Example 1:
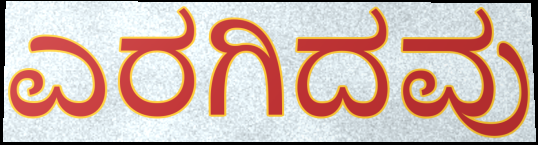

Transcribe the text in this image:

ಎರಗಿದವು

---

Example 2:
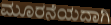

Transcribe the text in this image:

ಮೂರನೆಯದಾಗಿ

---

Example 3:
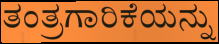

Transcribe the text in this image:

ತಂತ್ರಗಾರಿಕೆಯನ್ನು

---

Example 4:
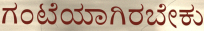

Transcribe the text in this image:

ಗಂಟೆಯಾಗಿರಬೇಕು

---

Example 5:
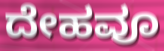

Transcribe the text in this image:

ದೇಹವೂ